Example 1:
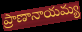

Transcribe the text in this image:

ప్రాణానాయమ్య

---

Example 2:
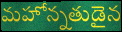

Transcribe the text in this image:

మహోన్నతుడైన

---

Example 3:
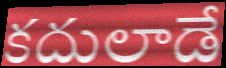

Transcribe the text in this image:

కదులాడే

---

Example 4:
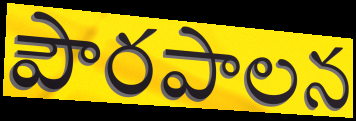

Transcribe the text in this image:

పౌరపాలన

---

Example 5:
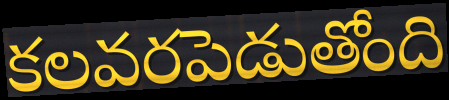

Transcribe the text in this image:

కలవరపెడుతోంది